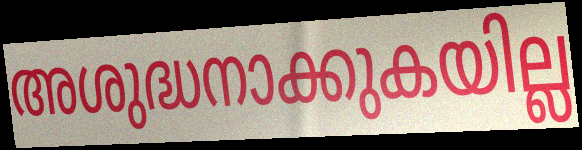
അശുദ്ധനാക്കുകയില്ല